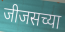
जीजसच्या